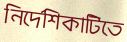
নির্দেশিকাটিতে